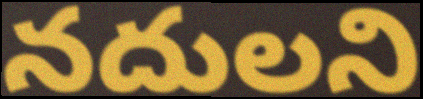
నదులని